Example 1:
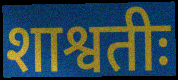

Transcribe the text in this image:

शाश्वतीः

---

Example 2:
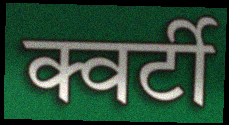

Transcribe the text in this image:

क्वर्टी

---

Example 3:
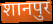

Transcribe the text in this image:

शानपुर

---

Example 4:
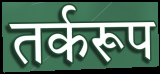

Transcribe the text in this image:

तर्करूप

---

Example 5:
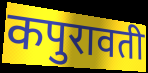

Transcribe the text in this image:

कपुरावती